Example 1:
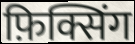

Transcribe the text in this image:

फ़िक्सिंग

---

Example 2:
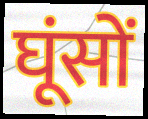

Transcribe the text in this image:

घूंसों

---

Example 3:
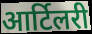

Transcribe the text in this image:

आर्टिलरी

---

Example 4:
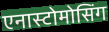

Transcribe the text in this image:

एनास्टोमोसिंग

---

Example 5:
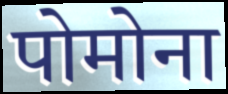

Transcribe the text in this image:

पोमोना